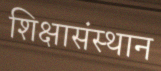
शिक्षासंस्थान